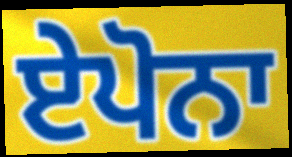
ਏਪੋਨਾ